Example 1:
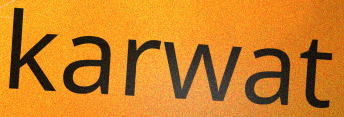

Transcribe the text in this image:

karwat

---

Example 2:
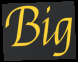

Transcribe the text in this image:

Big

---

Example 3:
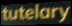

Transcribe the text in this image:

tutelary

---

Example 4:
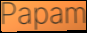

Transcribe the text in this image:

Papam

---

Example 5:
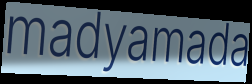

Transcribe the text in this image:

madyamada